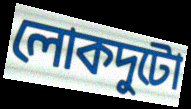
লোকদুটো